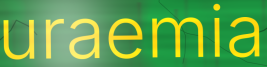
uraemia